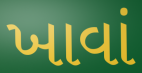
ખાવાં